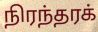
நிரந்தரக்